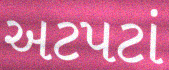
અટપટાં